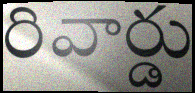
రివార్డు